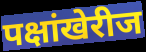
पक्षांखेरीज